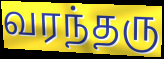
வரந்தரு